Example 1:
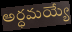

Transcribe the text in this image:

అర్ధమయ్యే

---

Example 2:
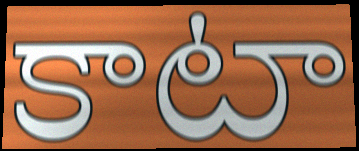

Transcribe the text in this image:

కాటా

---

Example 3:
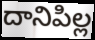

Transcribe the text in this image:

దానిపిల్ల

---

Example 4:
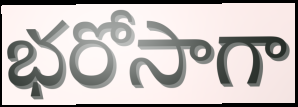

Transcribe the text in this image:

భరోసాగా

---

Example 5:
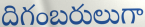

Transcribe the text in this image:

దిగంబరులుగా